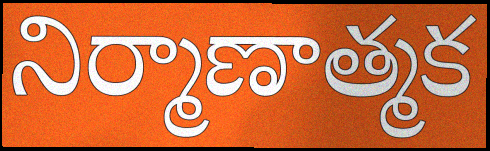
నిర్మాణాత్మక